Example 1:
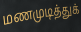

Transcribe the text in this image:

மணமுடித்துக்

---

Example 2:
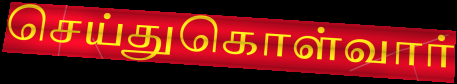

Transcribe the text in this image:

செய்துகொள்வார்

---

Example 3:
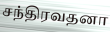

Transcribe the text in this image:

சந்திரவதனா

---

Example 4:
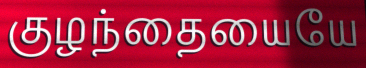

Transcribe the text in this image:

குழந்தையையே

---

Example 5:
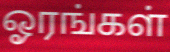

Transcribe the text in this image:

ஓரங்கள்